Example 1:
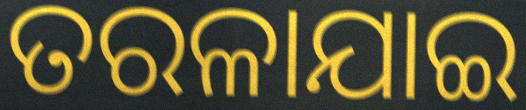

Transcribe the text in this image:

ତରଳାଯାଇ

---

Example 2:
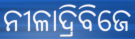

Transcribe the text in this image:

ନୀଳାଦ୍ରିବିଜେ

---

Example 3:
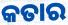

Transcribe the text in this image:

କତାର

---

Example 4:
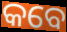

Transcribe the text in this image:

କବେ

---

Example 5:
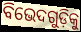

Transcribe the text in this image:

ବିଭେଦଗୁଡ଼ିକୁ